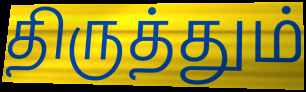
திருத்தும்